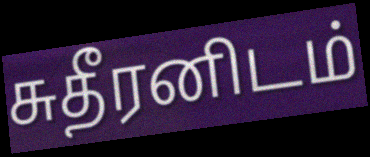
சுதீரனிடம்